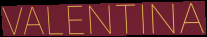
VALENTINA